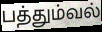
பத்தும்வல்